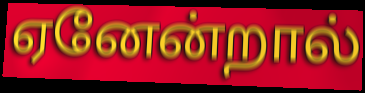
ஏனேன்றால்